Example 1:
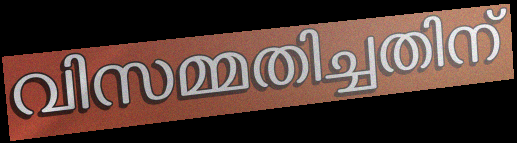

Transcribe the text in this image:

വിസമ്മതിച്ചതിന്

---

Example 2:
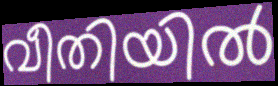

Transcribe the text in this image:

വീതിയിൽ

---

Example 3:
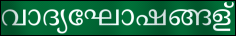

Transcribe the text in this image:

വാദ്യഘോഷങ്ങള്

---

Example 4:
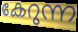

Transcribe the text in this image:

കേറുന്ന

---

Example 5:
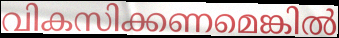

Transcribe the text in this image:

വികസിക്കണമെങ്കിൽ